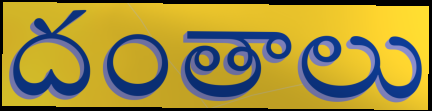
దంతాలు